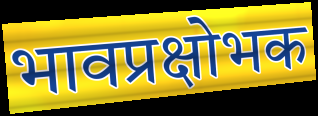
भावप्रक्षोभक